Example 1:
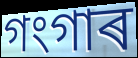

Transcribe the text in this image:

গংগাৰ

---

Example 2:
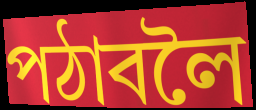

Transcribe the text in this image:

পঠাবলৈ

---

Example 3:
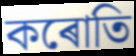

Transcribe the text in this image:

কৰোতি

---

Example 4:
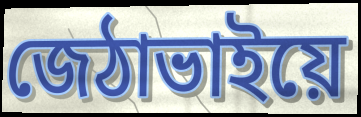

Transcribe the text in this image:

জেঠাভাইয়ে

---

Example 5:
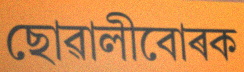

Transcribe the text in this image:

ছোৱালীবোৰক